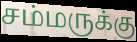
சம்மருக்கு